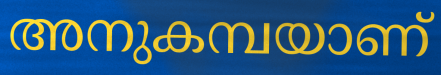
അനുകമ്പയാണ്